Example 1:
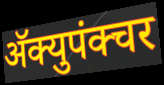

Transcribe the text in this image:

ॲक्युपंक्चर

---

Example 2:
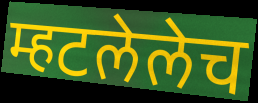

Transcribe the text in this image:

म्हटलेलेच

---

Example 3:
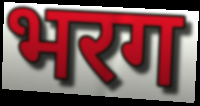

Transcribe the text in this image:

भरग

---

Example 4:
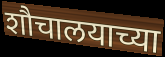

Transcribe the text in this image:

शौचालयाच्या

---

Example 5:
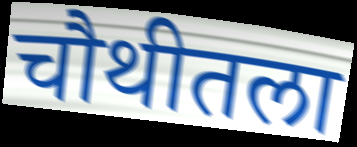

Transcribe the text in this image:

चौथीतला